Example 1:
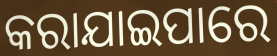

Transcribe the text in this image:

କରାଯାଇପାରେ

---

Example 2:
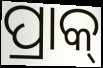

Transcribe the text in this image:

ପ୍ରାକ୍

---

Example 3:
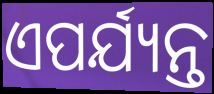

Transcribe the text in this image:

ଏପର୍ଯ୍ୟନ୍ତ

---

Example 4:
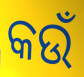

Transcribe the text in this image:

କଉଁ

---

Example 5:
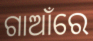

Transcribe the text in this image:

ଗାଆଁରେ